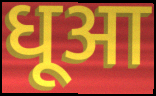
धूआ